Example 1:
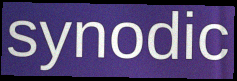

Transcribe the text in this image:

synodic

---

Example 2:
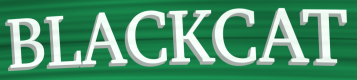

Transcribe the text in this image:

BLACKCAT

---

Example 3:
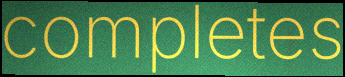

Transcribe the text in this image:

completes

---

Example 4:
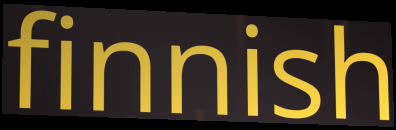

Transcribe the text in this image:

finnish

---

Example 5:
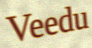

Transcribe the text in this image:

Veedu